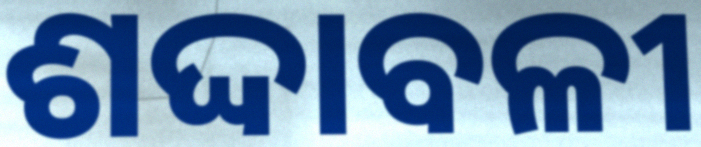
ଶଦ୍ଦାବଳୀ